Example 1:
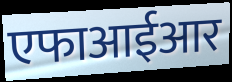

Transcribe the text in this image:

एफाआईआर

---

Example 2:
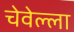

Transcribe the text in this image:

चेवेल्ला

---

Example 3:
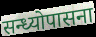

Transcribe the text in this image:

सन्ध्योपासना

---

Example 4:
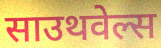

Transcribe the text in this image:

साउथवेल्स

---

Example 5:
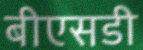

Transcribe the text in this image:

बीएसडी